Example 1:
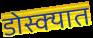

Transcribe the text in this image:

डोस्क्यात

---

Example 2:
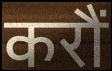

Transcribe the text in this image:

करौं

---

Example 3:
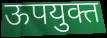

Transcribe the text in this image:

ऊपयुक्त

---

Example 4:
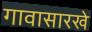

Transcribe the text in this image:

गावासारखे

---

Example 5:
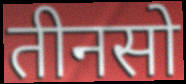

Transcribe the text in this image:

तीनसो